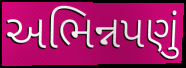
અભિન્નપણું